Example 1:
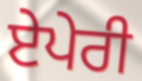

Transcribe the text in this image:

ਏਪੇਰੀ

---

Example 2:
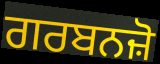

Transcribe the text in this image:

ਗਰਬਨਜ਼ੋ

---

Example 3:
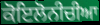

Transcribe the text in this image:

ਕੋਇਲੋਨੀਚੀਆ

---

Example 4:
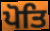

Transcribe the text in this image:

ਪੋਤਿ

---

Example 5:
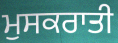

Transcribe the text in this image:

ਮੁਸਕਰਾਤੀ